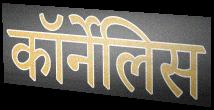
कॉर्नेलिस